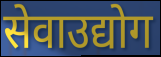
सेवाउद्योग